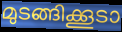
മുടങ്ങിക്കൂടാ